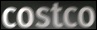
costco